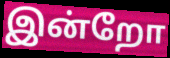
இன்றோ